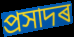
প্ৰসাদৰ